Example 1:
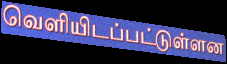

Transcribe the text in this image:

வெளியிடப்பட்டுள்ளன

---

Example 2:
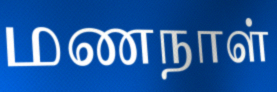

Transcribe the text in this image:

மணநாள்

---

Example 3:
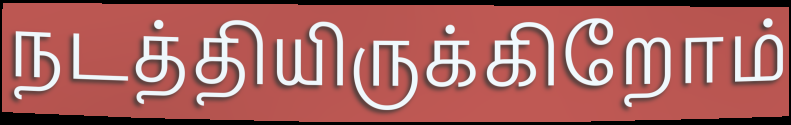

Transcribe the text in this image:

நடத்தியிருக்கிறோம்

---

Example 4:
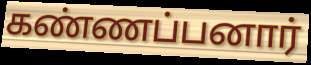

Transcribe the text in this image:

கண்ணப்பனார்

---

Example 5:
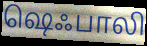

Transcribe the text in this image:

ஷெஃபாலி